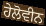
ਹੇਲੋਵੀਨ